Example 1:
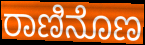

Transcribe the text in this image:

ರಾಣಿನೊಣ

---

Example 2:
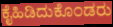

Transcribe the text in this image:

ಕೈಹಿಡಿದುಕೊಂಡರು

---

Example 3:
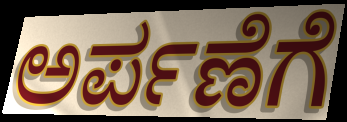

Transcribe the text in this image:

ಅರ್ಪಣೆಗೆ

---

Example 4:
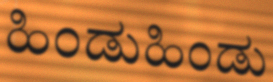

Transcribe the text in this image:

ಹಿಂಡುಹಿಂಡು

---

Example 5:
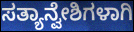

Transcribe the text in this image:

ಸತ್ಯಾನ್ವೇಶಿಗಳಾಗಿ